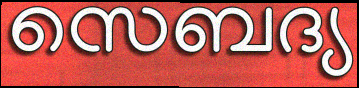
സെബദ്യ